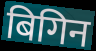
बिगिन